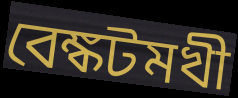
বেঙ্কটমখী